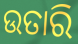
ଉତାରି